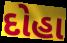
દોહા